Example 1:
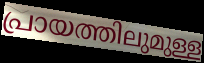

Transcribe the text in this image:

പ്രായത്തിലുമുള്ള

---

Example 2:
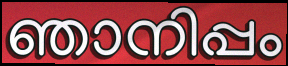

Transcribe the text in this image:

ഞാനിപ്പം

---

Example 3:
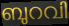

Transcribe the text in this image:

ബുറവി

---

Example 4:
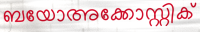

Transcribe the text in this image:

ബയോഅക്കോസ്റ്റിക്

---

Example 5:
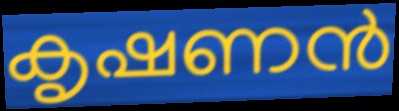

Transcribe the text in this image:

കൃഷണൻ